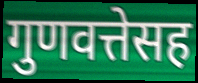
गुणवत्तेसह